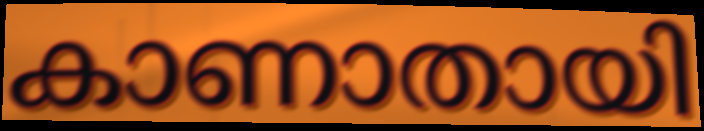
കാണാതായി